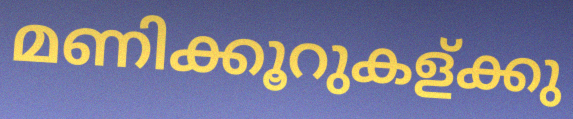
മണിക്കൂറുകള്ക്കു